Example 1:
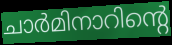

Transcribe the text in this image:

ചാർമിനാറിന്റെ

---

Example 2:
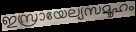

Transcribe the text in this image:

ഇസ്രായേല്യസമൂഹം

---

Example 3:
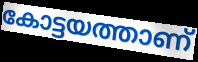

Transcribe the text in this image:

കോട്ടയത്താണ്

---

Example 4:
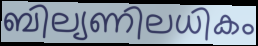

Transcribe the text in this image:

ബില്യണിലധികം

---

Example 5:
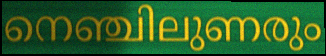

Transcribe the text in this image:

നെഞ്ചിലുണരും